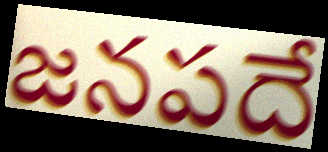
జనపదే